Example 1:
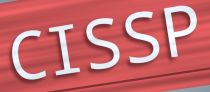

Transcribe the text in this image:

CISSP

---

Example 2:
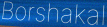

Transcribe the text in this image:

Borshakal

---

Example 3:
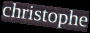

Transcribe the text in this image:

christophe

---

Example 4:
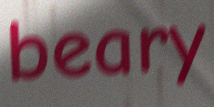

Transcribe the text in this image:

beary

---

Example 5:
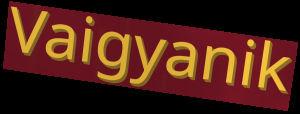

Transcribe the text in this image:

Vaigyanik